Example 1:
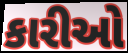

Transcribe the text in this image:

કારીઓ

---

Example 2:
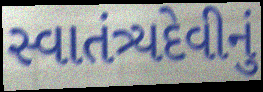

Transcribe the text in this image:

સ્વાતંત્ર્યદેવીનું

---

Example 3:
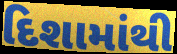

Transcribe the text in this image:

દિશામાંથી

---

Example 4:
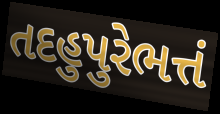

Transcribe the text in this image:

તદહુપુરેભત્તં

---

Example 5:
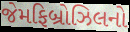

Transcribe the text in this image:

જેમફિબ્રોઝિલનો